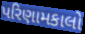
પરિણામકાલો